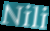
Nili